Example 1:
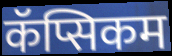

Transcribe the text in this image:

कॅप्सिकम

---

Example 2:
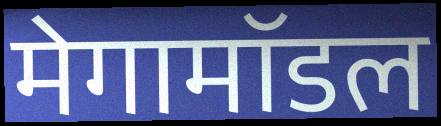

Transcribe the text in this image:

मेगामॉडल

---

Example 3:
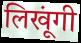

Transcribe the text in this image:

लिखूंगी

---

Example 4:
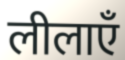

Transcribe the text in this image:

लीलाएँ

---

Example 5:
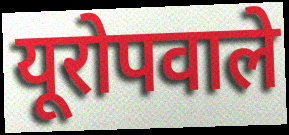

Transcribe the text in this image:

यूरोपवाले